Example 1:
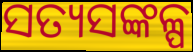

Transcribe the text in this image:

ସତ୍ୟସଙ୍କଳ୍ପ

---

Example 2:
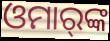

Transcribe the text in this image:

ଓମାର୍‌ଙ୍କ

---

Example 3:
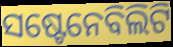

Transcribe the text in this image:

ସଷ୍ଟେନେବିଲିଟି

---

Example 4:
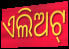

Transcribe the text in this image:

ଏଲିଅଟ୍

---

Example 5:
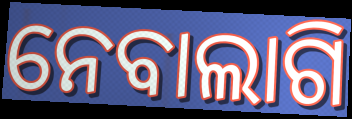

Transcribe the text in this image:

ନେବାଲାଗି